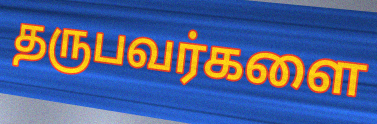
தருபவர்களை